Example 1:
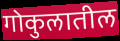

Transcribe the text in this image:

गोकुलातील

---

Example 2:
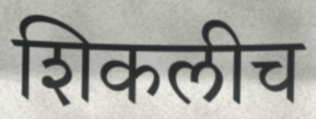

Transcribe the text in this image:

शिकलीच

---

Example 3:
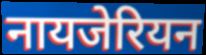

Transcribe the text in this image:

नायजेरियन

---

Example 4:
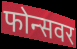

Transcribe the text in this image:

फोन्सवर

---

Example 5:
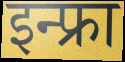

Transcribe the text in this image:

इन्फ्रा